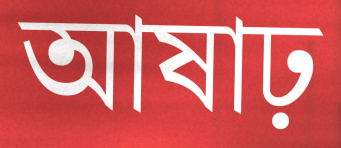
আষাঢ়